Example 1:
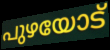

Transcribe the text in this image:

പുഴയോട്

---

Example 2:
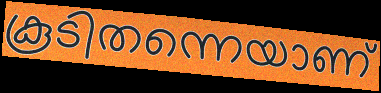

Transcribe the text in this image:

കൂടിതന്നെയാണ്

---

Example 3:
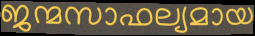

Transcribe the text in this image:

ജന്മസാഫല്യമായ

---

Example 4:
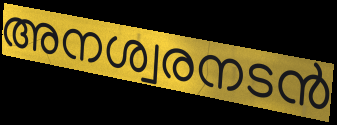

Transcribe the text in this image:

അനശ്വരനടൻ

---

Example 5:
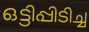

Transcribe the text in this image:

ഒട്ടിപ്പിടിച്ച